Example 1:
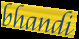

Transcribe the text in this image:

bhandi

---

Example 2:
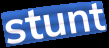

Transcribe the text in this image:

stunt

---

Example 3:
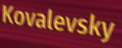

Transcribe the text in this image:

Kovalevsky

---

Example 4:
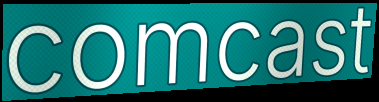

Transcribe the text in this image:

comcast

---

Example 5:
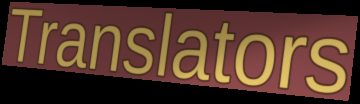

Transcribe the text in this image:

Translators